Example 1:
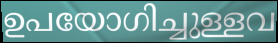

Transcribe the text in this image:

ഉപയോഗിച്ചുള്ളവ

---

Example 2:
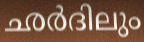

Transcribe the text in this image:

ഛർദിലും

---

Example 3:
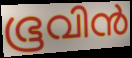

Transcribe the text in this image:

ഭൂവിൻ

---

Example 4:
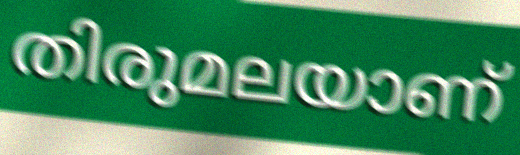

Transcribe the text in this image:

തിരുമലയാണ്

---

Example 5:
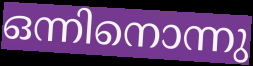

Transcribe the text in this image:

ഒന്നിനൊന്നു